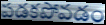
పడకపోవడం